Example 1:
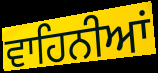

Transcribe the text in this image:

ਵਾਹਿਨੀਆਂ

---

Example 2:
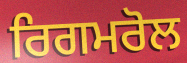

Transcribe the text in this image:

ਰਿਗਮਰੋਲ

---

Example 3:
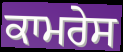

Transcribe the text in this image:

ਕਾਮਰੇਸ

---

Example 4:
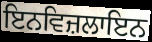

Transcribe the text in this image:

ਇਨਵਿਜ਼ਲਾਇਨ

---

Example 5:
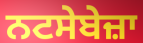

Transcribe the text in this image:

ਨਟਸੇਬੇਜ਼ਾ